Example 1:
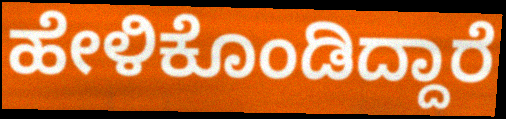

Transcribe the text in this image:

ಹೇಳಿಕೊಂಡಿದ್ದಾರೆ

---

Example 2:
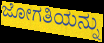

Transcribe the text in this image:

ಜೋಗತಿಯನ್ನು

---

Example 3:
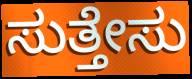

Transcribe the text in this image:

ಸುತ್ತೇಸು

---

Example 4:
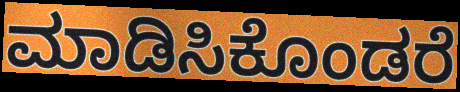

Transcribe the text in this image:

ಮಾಡಿಸಿಕೊಂಡರೆ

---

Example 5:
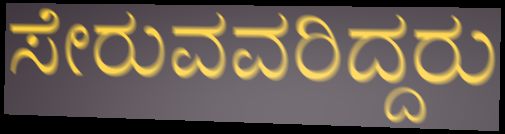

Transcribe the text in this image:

ಸೇರುವವರಿದ್ದರು